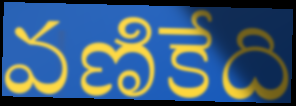
వణికేది